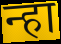
न्हा